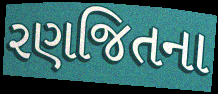
રણજિતના